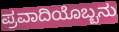
ಪ್ರವಾದಿಯೊಬ್ಬನು